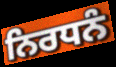
ਨਿਰਧਨੰ